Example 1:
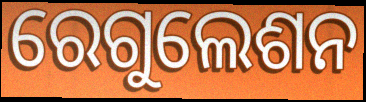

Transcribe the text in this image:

ରେଗୁଲେଶନ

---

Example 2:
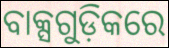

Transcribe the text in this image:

ବାକ୍ସଗୁଡ଼ିକରେ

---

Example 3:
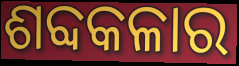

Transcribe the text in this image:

ଶବ୍ଦକଳାର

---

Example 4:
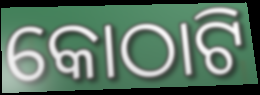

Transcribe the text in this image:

କୋଠାଟି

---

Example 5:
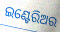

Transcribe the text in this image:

ଇଣ୍ଟେରିଅର